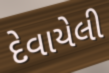
દેવાયેલી